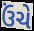
ઉંચે